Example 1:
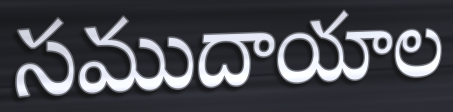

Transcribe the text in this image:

సముదాయాల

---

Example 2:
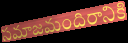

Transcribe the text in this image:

సమాజమందిరానికి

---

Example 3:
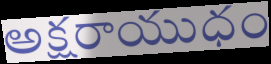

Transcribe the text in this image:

అక్షరాయుధం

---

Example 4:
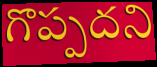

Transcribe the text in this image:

గొప్పదని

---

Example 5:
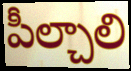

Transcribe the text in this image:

పీల్చాలి